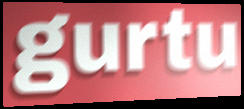
gurtu